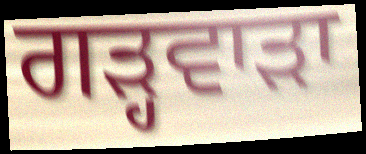
ਗੜ੍ਹਵਾੜਾ